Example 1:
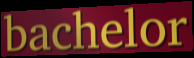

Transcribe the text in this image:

bachelor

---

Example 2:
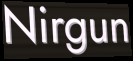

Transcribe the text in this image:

Nirgun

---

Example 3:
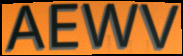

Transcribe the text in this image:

AEWV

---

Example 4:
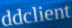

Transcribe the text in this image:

ddclient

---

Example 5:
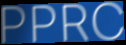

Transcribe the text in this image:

PPRC